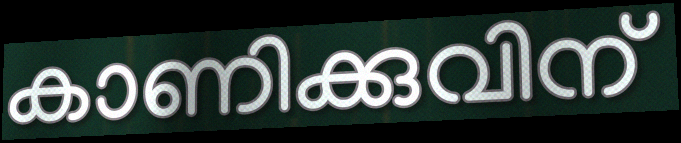
കാണിക്കുവിന്